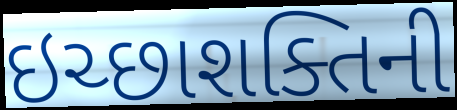
ઇચ્છાશક્તિની